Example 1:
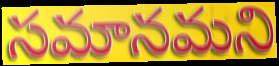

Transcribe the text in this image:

సమానమని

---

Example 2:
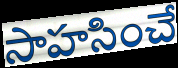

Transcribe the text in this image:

సాహసించే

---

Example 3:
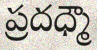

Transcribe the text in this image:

ప్రదధ్మౌ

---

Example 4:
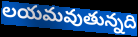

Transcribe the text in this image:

లయమవుతున్నది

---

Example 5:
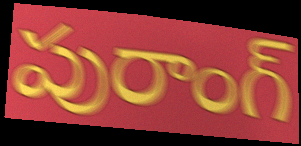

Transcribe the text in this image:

పురాంగ్